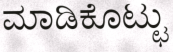
ಮಾಡಿಕೊಟ್ಟು